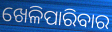
ଖେଳିପାରିବାର